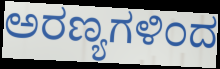
ಅರಣ್ಯಗಳಿಂದ